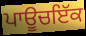
ਪਾਊਚਇੱਕ